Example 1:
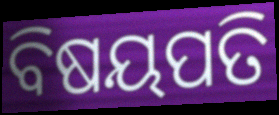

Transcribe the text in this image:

ବିଷୟପତି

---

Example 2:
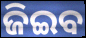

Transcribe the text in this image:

ଜିଇବ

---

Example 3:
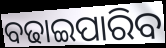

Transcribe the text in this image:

ବଢାଇପାରିବ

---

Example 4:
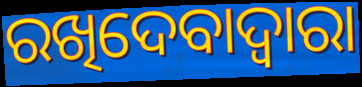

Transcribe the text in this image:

ରଖିଦେବାଦ୍ୱାରା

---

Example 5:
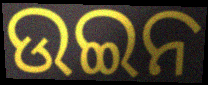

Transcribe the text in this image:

ଉଇନ